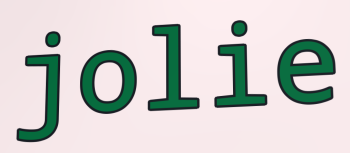
jolie